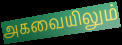
அகவையிலும்